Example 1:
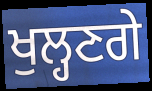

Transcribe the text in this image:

ਖੁਲ੍ਹਣਗੇ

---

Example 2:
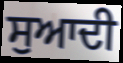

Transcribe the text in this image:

ਸੁਆਦੀ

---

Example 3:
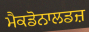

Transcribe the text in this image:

ਮੈਕਡੋਨਾਲਡਜ਼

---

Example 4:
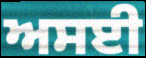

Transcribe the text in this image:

ਅਸਈ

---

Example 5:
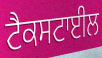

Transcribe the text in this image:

ਟੈਕਸਟਾਈਲ